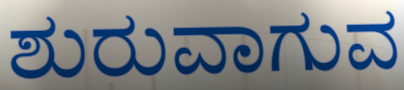
ಶುರುವಾಗುವ